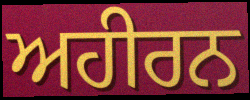
ਅਹੀਰਨ